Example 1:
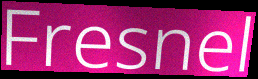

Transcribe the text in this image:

Fresnel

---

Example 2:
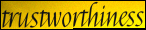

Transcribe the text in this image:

trustworthiness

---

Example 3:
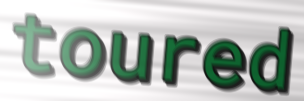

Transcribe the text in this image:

toured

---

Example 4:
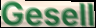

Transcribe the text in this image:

Gesell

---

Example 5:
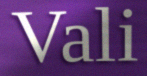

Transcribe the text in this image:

Vali